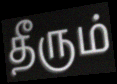
தீரும்